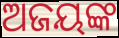
ଅଜୟଙ୍କ